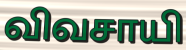
விவசாயி